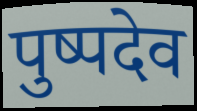
पुष्पदेव